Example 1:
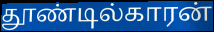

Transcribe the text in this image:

தூண்டில்காரன்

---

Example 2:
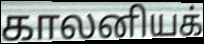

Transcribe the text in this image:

காலனியக்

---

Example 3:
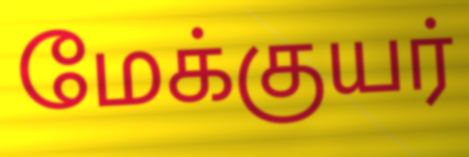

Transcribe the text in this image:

மேக்குயர்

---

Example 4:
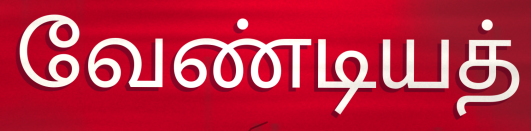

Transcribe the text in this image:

வேண்டியத்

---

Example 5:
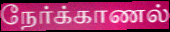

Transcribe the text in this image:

நேர்க்காணல்